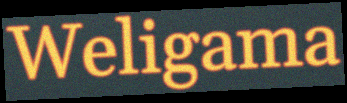
Weligama